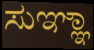
ಸುಞ್ಞಾ